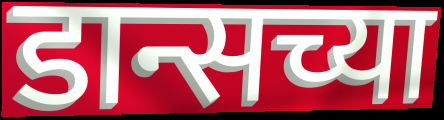
डान्सच्या